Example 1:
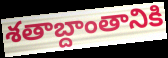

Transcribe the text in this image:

శతాబ్దాంతానికి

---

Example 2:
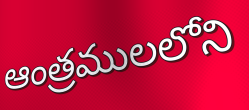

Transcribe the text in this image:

ఆంత్రములలోని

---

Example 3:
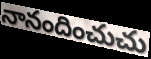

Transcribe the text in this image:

నానందించుచు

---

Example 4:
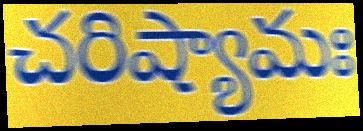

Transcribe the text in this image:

చరిష్యామః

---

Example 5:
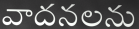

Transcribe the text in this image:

వాదనలను